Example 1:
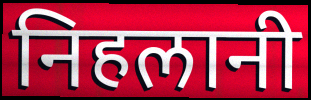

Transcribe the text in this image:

निहलानी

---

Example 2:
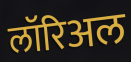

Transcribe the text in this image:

लॉरिअल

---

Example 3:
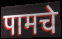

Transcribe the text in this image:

पामचे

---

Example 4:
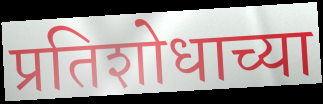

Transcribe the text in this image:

प्रतिशोधाच्या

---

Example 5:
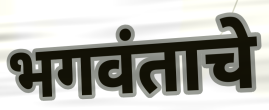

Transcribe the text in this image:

भगवंताचे